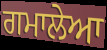
ਗਮਾਲੇਆ